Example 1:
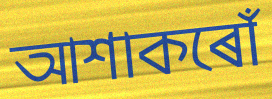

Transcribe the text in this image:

আশাকৰোঁ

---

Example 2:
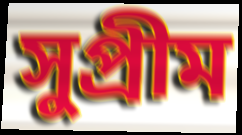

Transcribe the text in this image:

সুপ্ৰীম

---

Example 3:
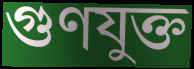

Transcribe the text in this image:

গুণযুক্ত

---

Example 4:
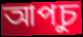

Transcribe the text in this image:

আপচু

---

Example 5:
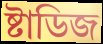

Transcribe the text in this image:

ষ্টাডিজ